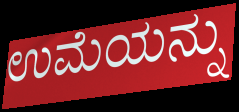
ಉಮೆಯನ್ನು